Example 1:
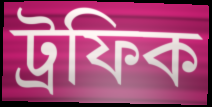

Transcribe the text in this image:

ট্রফিক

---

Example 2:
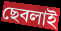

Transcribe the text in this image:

ছেবলাই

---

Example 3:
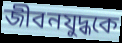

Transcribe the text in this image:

জীবনযুদ্ধকে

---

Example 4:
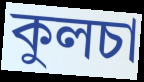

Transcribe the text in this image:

কুলচা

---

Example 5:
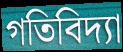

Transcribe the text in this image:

গতিবিদ্যা